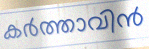
കർത്താവിൻ